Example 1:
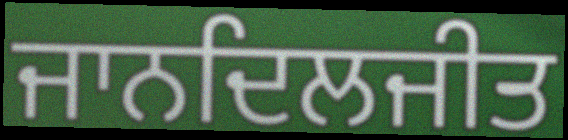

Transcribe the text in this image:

ਜਾਨਦਿਲਜੀਤ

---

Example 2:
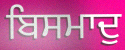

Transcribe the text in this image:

ਬਿਸਮਾਦੁ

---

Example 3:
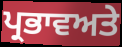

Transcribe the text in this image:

ਪ੍ਰਭਾਵਅਤੇ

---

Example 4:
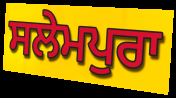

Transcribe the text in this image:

ਸਲੇਮਪੁਰਾ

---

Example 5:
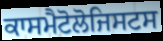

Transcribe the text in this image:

ਕਾਸਮੈਟੋਲੋਜਿਸਟਸ